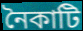
নৈকাটি